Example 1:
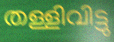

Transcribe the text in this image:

തള്ളിവിട്ടു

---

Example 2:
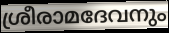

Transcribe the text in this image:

ശ്രീരാമദേവനും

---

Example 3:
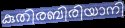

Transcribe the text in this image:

കുതിരബിരിയാനി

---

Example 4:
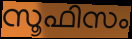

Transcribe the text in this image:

സൂഫിസം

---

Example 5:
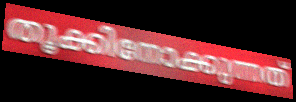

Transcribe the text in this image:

തൂക്കിനോക്കുന്നത്